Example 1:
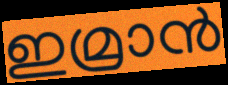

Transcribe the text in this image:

ഇമ്രാൻ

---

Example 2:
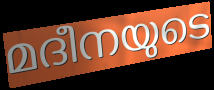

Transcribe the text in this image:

മദീനയുടെ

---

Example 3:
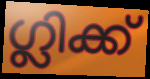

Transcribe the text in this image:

ഗ്ലിക്ക്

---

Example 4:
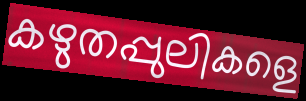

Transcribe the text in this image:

കഴുതപ്പുലികളെ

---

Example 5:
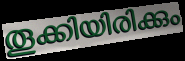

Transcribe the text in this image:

തൂക്കിയിരിക്കും